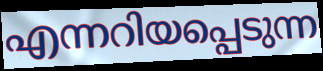
എന്നറിയപ്പെടുന്ന